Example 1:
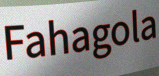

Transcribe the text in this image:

Fahagola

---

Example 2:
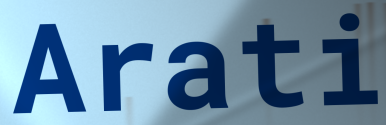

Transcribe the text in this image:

Arati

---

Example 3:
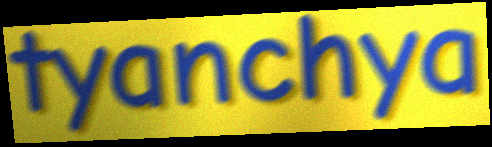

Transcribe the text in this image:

tyanchya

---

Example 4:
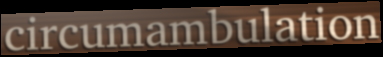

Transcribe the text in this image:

circumambulation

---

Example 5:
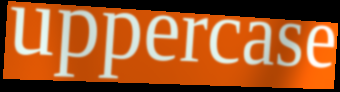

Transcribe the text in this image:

uppercase